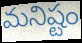
మనిష్టం